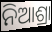
ନିଆଶ୍ରା